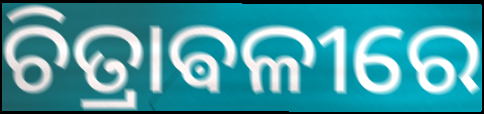
ଚିତ୍ରାଵଳୀରେ